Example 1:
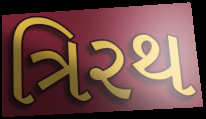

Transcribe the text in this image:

ત્રિરથ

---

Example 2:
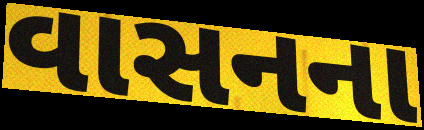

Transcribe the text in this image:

વાસનના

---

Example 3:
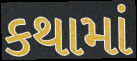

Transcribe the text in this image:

કથામાં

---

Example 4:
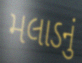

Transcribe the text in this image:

મલાડનું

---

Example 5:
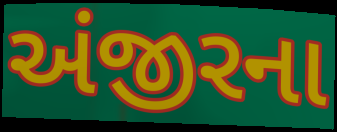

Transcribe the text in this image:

અંજીરના